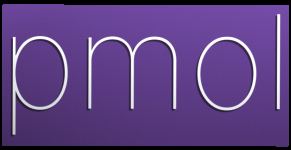
pmol